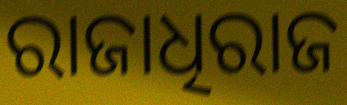
ରାଜାଧିରାଜ